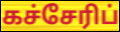
கச்சேரிப்